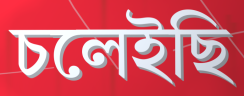
চলেইছি